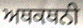
ਅਥਕਥਨੀ